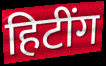
हिटींग